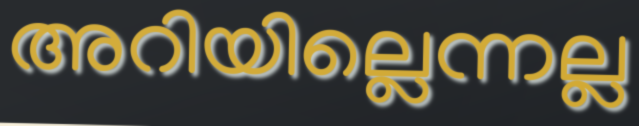
അറിയില്ലെന്നല്ല